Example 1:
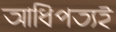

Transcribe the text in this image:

আধিপত্যই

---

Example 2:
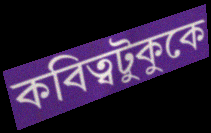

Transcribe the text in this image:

কবিত্বটুকুকে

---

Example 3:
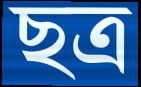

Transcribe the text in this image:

ছত্র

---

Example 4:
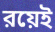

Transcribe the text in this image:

রয়েই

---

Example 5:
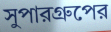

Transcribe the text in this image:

সুপারগ্রুপের